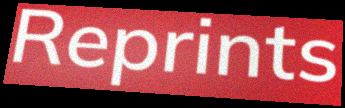
Reprints